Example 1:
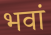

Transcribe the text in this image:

भवां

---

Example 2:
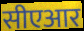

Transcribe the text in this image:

सीएआर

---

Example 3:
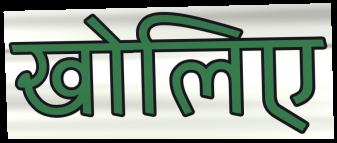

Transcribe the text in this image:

खोलिए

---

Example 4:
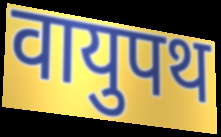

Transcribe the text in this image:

वायुपथ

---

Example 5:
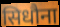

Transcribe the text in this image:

सिधौना